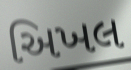
અિખલ